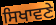
ਸਿਖਾਵਣੇ